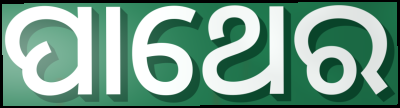
ପାଥେର